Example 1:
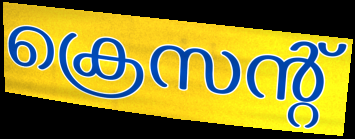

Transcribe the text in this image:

ക്രെസന്റ്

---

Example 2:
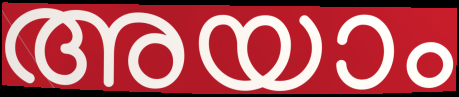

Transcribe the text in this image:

അയാം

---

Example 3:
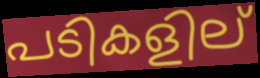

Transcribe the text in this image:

പടികളില്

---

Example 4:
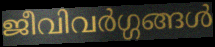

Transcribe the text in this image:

ജീവിവർഗ്ഗങ്ങൾ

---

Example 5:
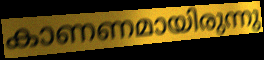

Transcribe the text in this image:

കാണണമായിരുന്നു